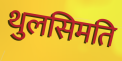
थुलसिमति